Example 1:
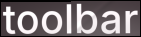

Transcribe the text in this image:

toolbar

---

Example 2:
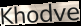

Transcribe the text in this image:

Khodve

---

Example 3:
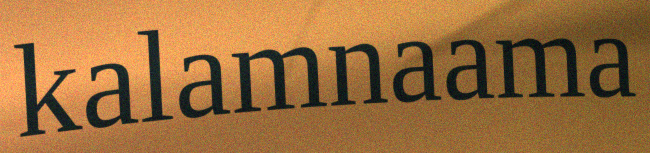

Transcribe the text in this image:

kalamnaama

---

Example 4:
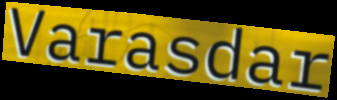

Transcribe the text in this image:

Varasdar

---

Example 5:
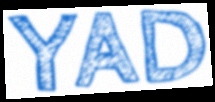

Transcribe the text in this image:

YAD